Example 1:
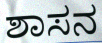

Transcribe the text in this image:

ಶಾಸನ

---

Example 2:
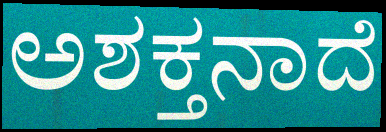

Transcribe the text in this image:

ಅಶಕ್ತನಾದೆ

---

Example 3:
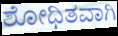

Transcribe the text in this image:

ಶೋಧಿತವಾಗಿ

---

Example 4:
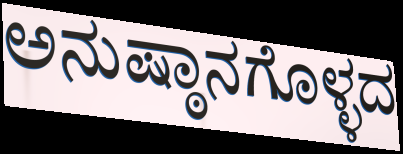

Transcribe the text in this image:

ಅನುಷ್ಠಾನಗೊಳ್ಳದ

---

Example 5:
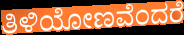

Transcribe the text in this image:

ತಿಳಿಯೋಣವೆಂದರೆ